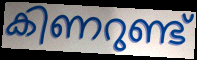
കിണറുണ്ട്